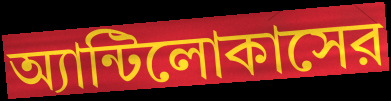
অ্যান্টিলোকাসের